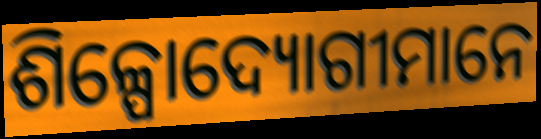
ଶିଳ୍ପୋଦ୍ୟୋଗୀମାନେ